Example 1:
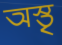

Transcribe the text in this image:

অস্তৃ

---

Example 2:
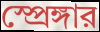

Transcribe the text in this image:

স্প্রেঙ্গার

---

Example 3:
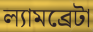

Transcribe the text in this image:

ল্যামব্রেটা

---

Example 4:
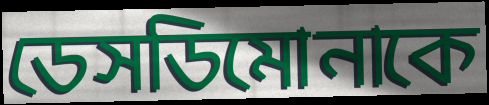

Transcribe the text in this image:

ডেসডিমোনাকে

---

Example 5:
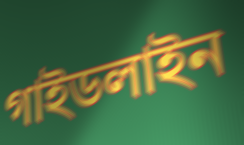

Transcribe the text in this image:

গাইডলাইন